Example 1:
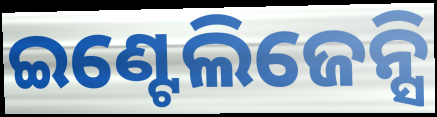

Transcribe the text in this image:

ଇଣ୍ଟେଲିଜେନ୍ସି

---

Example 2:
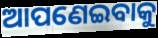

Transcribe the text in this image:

ଆପଣେଇବାକୁ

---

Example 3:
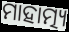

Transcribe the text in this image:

ମାହାତ୍ମ୍ୟ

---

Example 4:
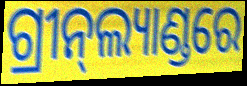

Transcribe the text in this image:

ଗ୍ରୀନ୍‍ଲ୍ୟାଣ୍ଡରେ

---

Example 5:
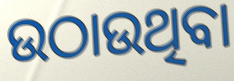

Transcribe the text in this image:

ଉଠାଉଥିବା